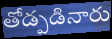
తోడ్పడినారు